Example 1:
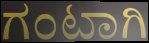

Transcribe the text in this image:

ಗಂಟಾಗಿ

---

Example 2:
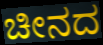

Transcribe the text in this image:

ಚೀನದ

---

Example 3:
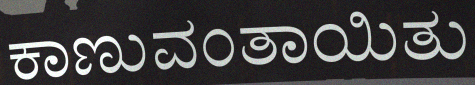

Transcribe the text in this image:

ಕಾಣುವಂತಾಯಿತು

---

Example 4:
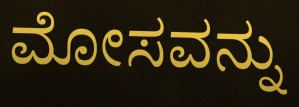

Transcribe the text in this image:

ಮೋಸವನ್ನು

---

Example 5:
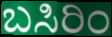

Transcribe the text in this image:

ಬಸಿರಿಂ